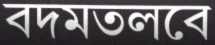
বদমতলবে